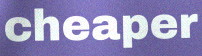
cheaper